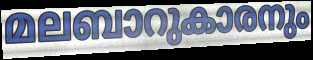
മലബാറുകാരനും